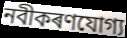
নবীকৰণযোগ্য